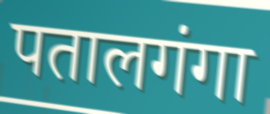
पतालगंगा